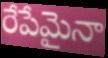
రేపేమైనా